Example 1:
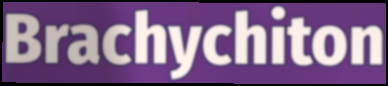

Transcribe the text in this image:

Brachychiton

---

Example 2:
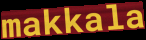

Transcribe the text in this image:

makkala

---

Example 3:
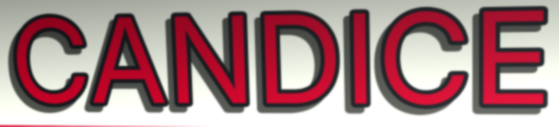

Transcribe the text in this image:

CANDICE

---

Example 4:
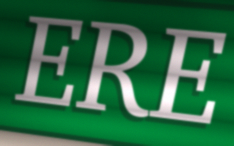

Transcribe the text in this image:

ERE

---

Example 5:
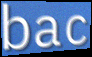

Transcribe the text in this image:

bac